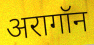
अरागॉन